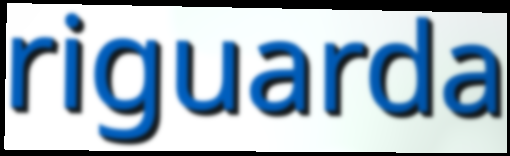
riguarda